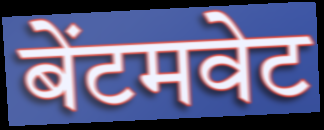
बेंटमवेट